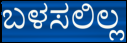
ಬಳಸಲಿಲ್ಲ